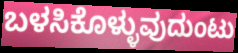
ಬಳಸಿಕೊಳ್ಳುವುದುಂಟು